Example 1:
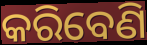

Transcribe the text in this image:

କରିବେଣି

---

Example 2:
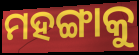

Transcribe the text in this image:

ମହଙ୍ଗାକୁ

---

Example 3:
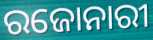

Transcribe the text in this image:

ରଜୋନାରୀ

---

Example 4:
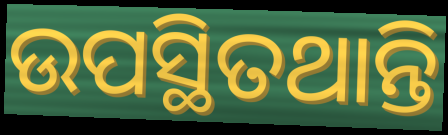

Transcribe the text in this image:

ଉପସ୍ଥିତଥାନ୍ତି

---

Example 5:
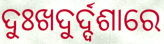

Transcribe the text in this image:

ଦୁଃଖଦୁର୍ଦ୍ଦଶାରେ